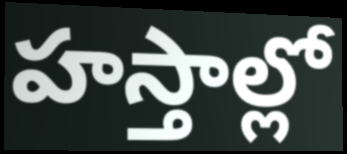
హస్తాల్లో